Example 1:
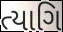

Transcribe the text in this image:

ત્યાગિ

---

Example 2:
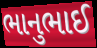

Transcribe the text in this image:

ભાનુભાઈ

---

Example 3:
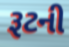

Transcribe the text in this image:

રૂટની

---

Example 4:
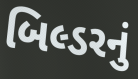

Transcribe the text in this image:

બિલ્ડરનું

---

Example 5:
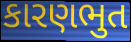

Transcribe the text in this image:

કારણભુત